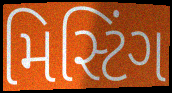
મિસ્ટિંગ